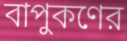
বাপুকণের